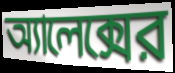
অ্যালেক্সের